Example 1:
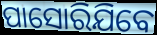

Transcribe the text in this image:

ପାସୋରିଯିବେ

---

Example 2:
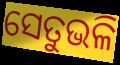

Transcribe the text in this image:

ସେତୁଭଳି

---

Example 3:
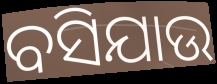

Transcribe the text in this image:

ବସିଯାଉ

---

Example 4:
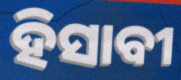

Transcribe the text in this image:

ହିସାବୀ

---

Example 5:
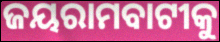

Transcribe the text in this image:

ଜୟରାମବାଟୀକୁ